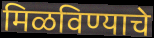
मिळविण्याचे